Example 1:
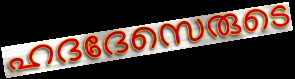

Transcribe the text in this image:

ഹദദേസെരുടെ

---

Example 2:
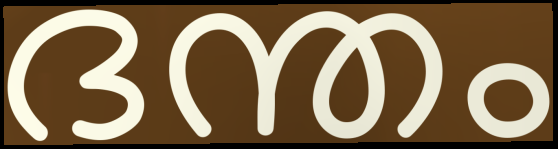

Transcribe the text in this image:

ദന്തം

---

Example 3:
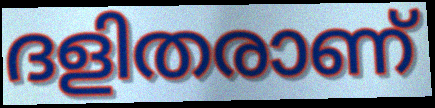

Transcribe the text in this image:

ദളിതരാണ്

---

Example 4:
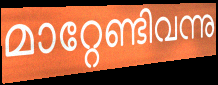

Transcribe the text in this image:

മാറ്റേണ്ടിവന്നു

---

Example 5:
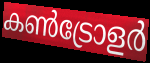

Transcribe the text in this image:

കൺട്രോളർ